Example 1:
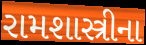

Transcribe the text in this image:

રામશાસ્ત્રીના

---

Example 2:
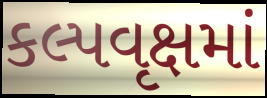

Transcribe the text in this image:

કલ્પવૃક્ષમાં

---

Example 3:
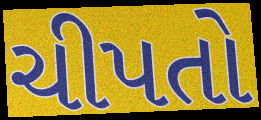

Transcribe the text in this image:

ચીપતો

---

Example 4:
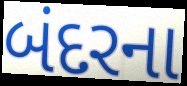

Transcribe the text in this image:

બંદરના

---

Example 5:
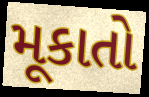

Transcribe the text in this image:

મૂકાતો